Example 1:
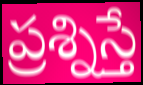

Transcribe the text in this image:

ప్రశ్నిస్తే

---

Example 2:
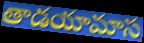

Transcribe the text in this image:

తాడయామాస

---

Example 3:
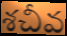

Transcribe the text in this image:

శచీవ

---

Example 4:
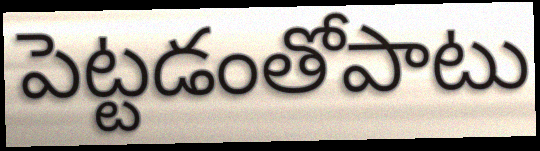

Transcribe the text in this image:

పెట్టడంతోపాటు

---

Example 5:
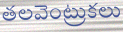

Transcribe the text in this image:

తలవెంట్రుకలు